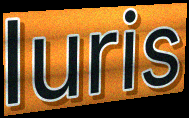
Iuris